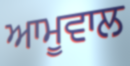
ਆਮੂਵਾਲ